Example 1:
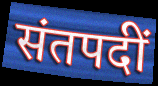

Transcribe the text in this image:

संतपदीं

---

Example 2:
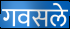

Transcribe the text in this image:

गवसले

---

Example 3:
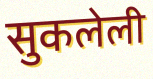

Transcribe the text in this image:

सुकलेली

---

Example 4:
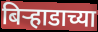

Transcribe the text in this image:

बिऱ्हाडाच्या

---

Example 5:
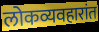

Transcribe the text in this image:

लोकव्यवहारांत